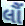
લૌં